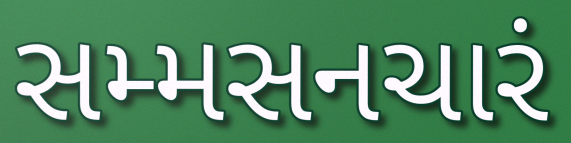
સમ્મસનચારં